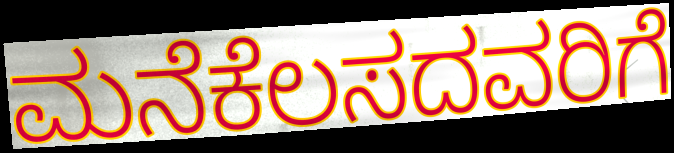
ಮನೆಕೆಲಸದವರಿಗೆ